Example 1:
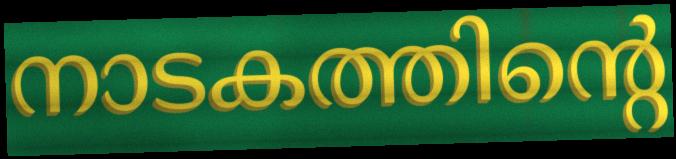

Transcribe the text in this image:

നാടകത്തിന്റെ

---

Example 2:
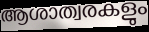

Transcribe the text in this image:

ആശാത്വരകളും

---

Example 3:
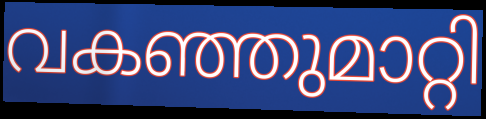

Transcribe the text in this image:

വകഞ്ഞുമാറ്റി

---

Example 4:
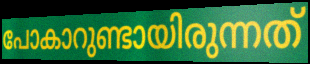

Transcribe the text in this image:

പോകാറുണ്ടായിരുന്നത്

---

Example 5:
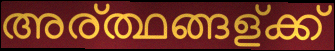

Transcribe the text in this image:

അര്ത്ഥങ്ങള്ക്ക്